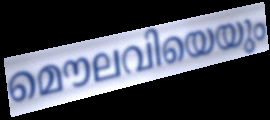
മൌലവിയെയും